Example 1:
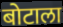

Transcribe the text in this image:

बोटाला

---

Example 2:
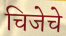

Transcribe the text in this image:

चिजेचे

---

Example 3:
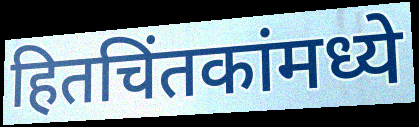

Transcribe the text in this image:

हितचिंतकांमध्ये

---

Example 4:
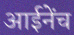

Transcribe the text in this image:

आईनेंच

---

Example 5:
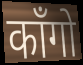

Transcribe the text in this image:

काँगो